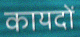
कायदों